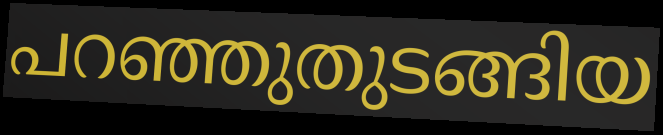
പറഞ്ഞുതുടങ്ങിയ